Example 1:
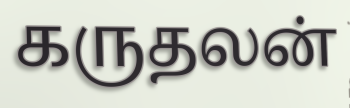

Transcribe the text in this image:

கருதலன்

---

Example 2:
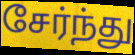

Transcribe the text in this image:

சேர்ந்து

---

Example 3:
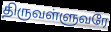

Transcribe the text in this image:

திருவள்ளுவரே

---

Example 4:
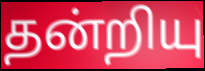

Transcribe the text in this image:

தன்றியு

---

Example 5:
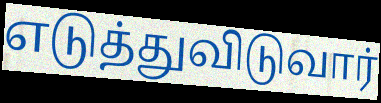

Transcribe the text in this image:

எடுத்துவிடுவார்